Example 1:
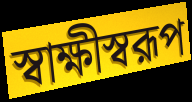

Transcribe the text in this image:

স্বাক্ষীস্বরূপ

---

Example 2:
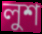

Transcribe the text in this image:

লুশ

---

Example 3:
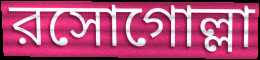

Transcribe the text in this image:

রসোগোল্লা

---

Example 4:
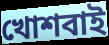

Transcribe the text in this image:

খোশবাই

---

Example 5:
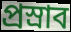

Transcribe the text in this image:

প্রস্রাব